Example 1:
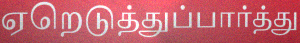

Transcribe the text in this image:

ஏறெடுத்துப்பார்த்து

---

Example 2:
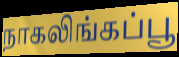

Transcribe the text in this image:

நாகலிங்கப்பூ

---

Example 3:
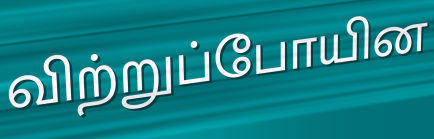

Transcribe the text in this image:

விற்றுப்போயின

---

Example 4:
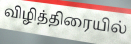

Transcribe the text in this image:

விழித்திரையில்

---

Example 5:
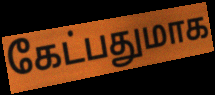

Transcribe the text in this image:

கேட்பதுமாக